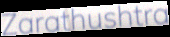
Zarathushtra